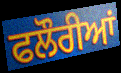
ਫਲੌਰੀਆਂ